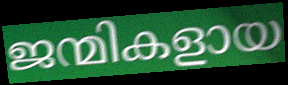
ജന്മികളായ